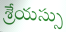
శ్రేయస్సు